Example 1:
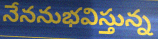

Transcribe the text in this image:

నేననుభవిస్తున్న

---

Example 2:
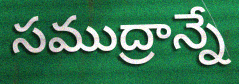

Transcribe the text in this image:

సముద్రాన్నే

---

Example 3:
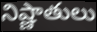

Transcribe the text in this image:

నిష్ణాతులు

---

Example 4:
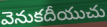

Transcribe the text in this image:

వెనుకదీయుచు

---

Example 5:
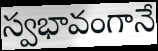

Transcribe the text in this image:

స్వభావంగానే